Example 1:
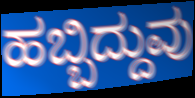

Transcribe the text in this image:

ಹಬ್ಬಿದ್ದುವು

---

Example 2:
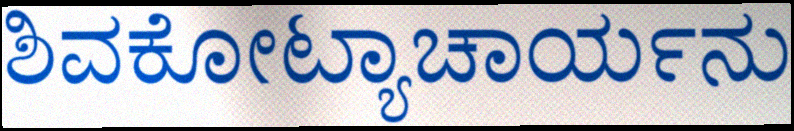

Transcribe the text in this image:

ಶಿವಕೋಟ್ಯಾಚಾರ್ಯನು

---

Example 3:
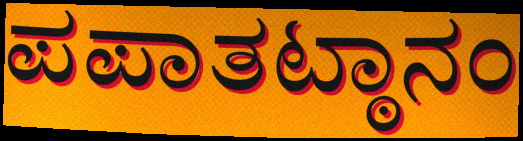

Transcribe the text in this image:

ಪಪಾತಟ್ಠಾನಂ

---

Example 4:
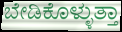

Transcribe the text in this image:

ಬೇಡಿಕೊಳ್ಳುತ್ತಾ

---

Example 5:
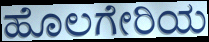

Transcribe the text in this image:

ಹೊಲಗೇರಿಯ